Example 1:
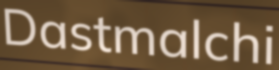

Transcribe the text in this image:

Dastmalchi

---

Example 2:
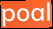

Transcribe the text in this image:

poal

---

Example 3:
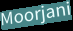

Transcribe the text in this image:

Moorjani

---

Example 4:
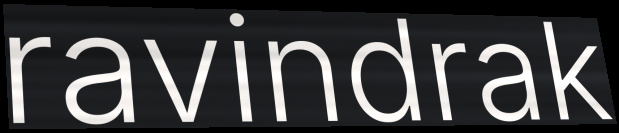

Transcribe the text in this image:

ravindrak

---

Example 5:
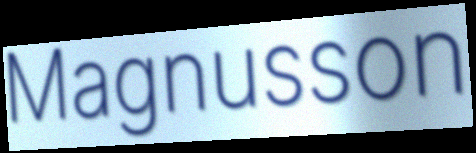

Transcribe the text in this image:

Magnusson